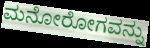
ಮನೋರೋಗವನ್ನು